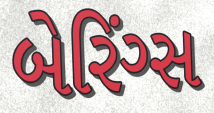
બેરિંગ્સ